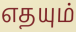
எதயும்